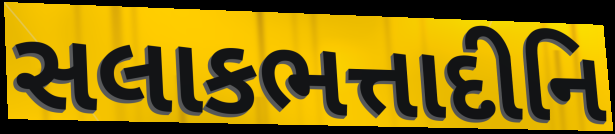
સલાકભત્તાદીનિ